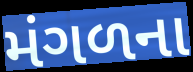
મંગળના